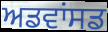
ਅਡਵਾਂਸਡ